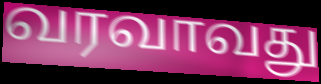
வரவாவது